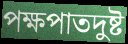
পক্ষপাতদুষ্ট